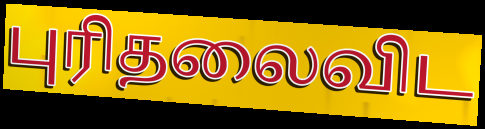
புரிதலைவிட